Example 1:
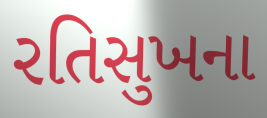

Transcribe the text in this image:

રતિસુખના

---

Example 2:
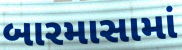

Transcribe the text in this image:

બારમાસામાં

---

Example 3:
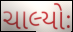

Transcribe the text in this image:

ચાલ્યોઃ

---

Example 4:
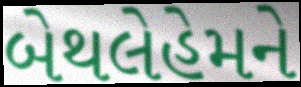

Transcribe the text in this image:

બેથલેહેમને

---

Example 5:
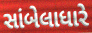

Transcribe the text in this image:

સાંબેલાધારે